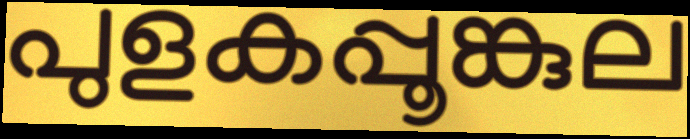
പുളകപ്പൂങ്കുല